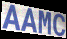
AAMC